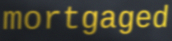
mortgaged